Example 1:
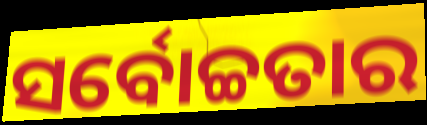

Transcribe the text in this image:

ସର୍ବୋଚ୍ଚତାର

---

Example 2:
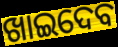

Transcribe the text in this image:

ଖାଇଦେବ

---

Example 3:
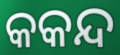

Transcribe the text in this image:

କକନ୍ଦ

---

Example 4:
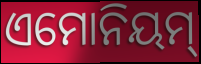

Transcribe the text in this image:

ଏମୋନିୟମ୍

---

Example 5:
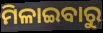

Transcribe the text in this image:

ମିଳାଇବାରୁ